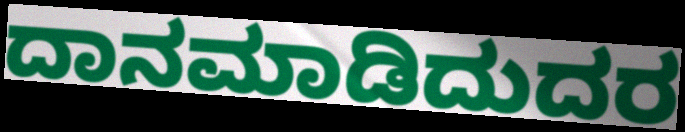
ದಾನಮಾಡಿದುದರ